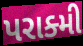
પરાક્મી